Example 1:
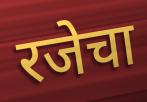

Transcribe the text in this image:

रजेचा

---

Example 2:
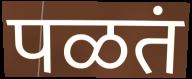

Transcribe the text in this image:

पळतं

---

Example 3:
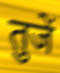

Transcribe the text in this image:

तुजें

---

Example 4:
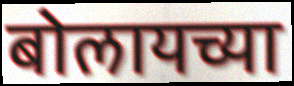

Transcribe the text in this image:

बोलायच्या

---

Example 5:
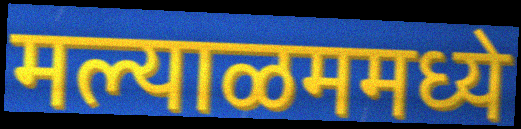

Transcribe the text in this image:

मल्याळममध्ये